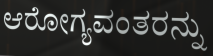
ಆರೋಗ್ಯವಂತರನ್ನು